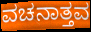
ವಚನಾತ್ತವ